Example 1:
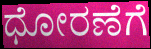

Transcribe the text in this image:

ಧೋರಣೆಗೆ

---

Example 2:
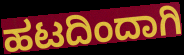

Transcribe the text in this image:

ಹಟದಿಂದಾಗಿ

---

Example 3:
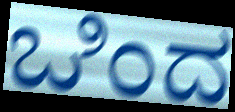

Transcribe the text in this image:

ಒಿಂದ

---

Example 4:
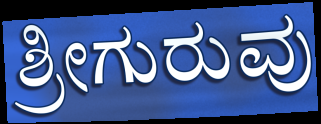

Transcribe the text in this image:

ಶ್ರೀಗುರುವು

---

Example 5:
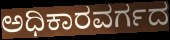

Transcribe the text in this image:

ಅಧಿಕಾರವರ್ಗದ